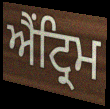
ਐਂਟ੍ਰਿਮ